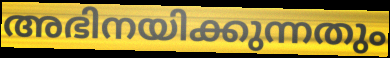
അഭിനയിക്കുന്നതും